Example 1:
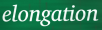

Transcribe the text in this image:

elongation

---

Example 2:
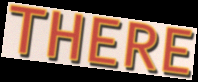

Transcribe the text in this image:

THERE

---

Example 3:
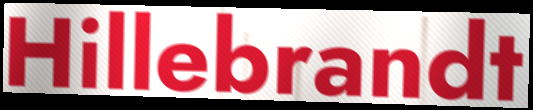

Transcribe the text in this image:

Hillebrandt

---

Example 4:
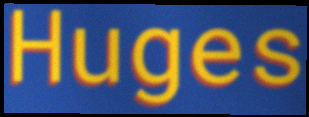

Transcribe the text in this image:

Huges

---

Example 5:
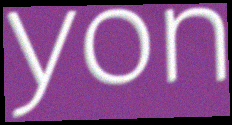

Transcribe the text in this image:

yon